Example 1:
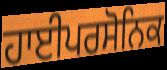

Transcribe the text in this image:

ਹਾਈਪਰਸੋਨਿਕ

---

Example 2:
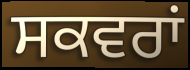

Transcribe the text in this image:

ਸਕਵਰਾਂ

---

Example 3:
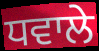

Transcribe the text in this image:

ਧਵਾਲੇ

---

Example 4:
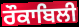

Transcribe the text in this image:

ਰੌਕਾਬਿਲੀ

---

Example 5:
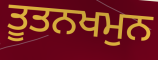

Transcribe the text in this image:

ਤੂਤਨਖਮੁਨ